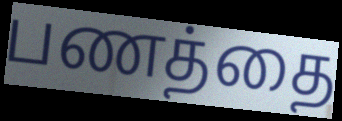
பணத்தை